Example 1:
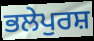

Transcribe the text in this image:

ਭਲੇਪੁਰਸ਼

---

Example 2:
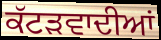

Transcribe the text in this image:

ਕੱਟੜਵਾਦੀਆਂ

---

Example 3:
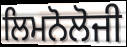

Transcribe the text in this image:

ਲਿਮਨੋਲੋਜੀ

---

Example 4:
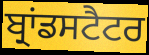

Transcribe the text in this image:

ਬ੍ਰਾਂਡਸਟੈਟਰ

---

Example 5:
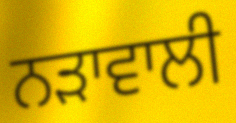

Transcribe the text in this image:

ਨੜਾਵਾਲੀ